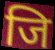
जि